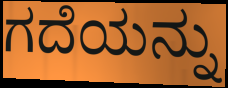
ಗದೆಯನ್ನು